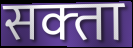
सक्‍ता